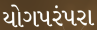
યોગપરંપરા